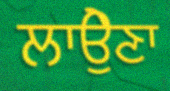
ਲਾਉੇਣਾ